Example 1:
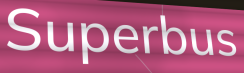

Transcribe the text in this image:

Superbus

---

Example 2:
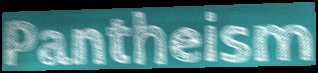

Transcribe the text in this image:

Pantheism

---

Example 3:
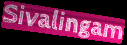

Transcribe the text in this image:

Sivalingam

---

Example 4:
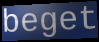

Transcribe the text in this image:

beget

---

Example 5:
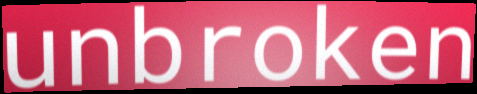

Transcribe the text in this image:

unbroken